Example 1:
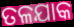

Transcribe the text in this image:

ତଳଯାକ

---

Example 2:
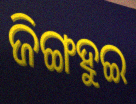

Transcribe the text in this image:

ଜିଙ୍ଗହୁଇ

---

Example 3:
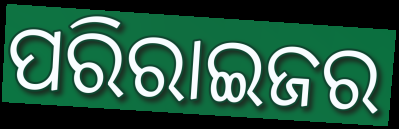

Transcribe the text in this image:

ପରିରାଇଜର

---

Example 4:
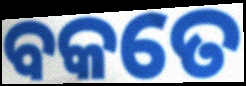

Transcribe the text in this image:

ବକତେ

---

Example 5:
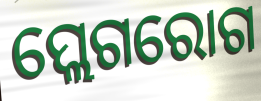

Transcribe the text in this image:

ପ୍ଲେଗରୋଗ